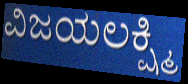
ವಿಜಯಲಕ್ಷ್ಮಿ